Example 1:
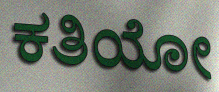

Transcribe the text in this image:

ಕತಿಯೋ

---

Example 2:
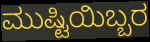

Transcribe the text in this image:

ಮುಷ್ಟಿಯಿಬ್ಬರ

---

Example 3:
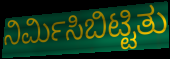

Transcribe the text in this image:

ನಿರ್ಮಿಸಿಬಿಟ್ಟಿತು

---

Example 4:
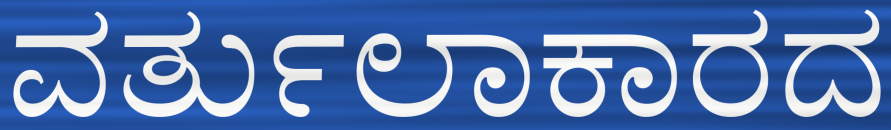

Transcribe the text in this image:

ವರ್ತುಲಾಕಾರದ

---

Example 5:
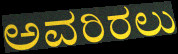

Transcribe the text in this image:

ಅವರಿರಲು